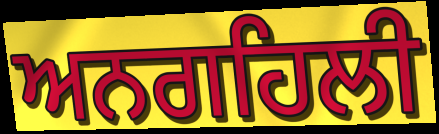
ਅਨਗਹਿਲੀ